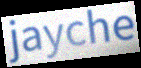
jayche